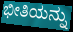
ಭೀತಿಯನ್ನು